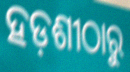
ହଡ଼ଶୀଠାରୁ